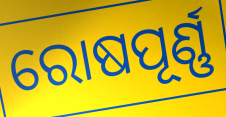
ରୋଷପୂର୍ଣ୍ଣ